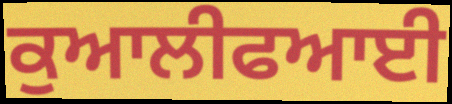
ਕੁਆਲੀਫਆਈ